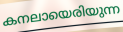
കനലായെരിയുന്ന